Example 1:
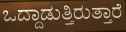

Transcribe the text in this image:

ಒದ್ದಾಡುತ್ತಿರುತ್ತಾರೆ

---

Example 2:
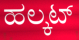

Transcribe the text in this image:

ಹಲ್ಕಟ್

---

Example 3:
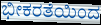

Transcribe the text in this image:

ಭೀಕರತೆಯಿಂದ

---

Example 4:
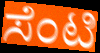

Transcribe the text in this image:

ಸೆಂಟಿ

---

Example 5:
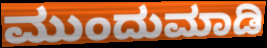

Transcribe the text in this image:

ಮುಂದುಮಾಡಿ